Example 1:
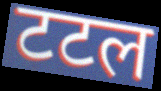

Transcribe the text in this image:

टटल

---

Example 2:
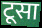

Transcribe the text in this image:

टूसा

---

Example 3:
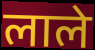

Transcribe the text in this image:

लाले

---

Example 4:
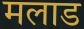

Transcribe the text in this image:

मलाड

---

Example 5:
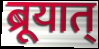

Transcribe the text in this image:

ब्रूयात्